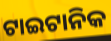
ଟାଇଟାନିକ